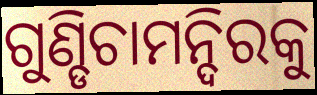
ଗୁଣ୍ଡିଚାମନ୍ଦିରକୁ